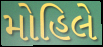
મોહિલે